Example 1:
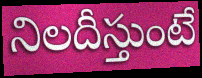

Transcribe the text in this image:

నిలదీస్తుంటే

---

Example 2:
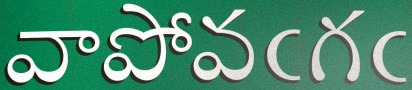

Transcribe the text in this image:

వాపోవఁగఁ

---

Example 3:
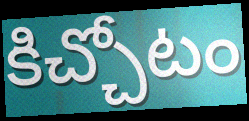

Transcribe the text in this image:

కిచ్చోటం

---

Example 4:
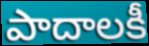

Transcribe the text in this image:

పాదాలకీ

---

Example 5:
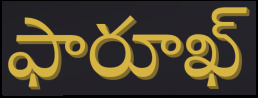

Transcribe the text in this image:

ఫారూఖ్